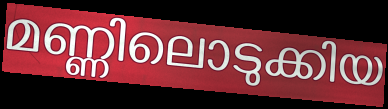
മണ്ണിലൊടുക്കിയ